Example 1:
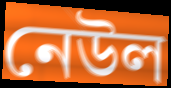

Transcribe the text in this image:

নেউল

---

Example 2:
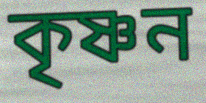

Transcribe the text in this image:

কৃষ্ণন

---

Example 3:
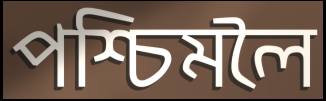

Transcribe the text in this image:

পশ্চিমলৈ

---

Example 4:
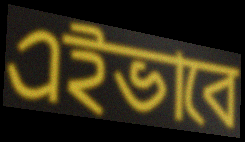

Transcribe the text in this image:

এইভাবে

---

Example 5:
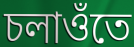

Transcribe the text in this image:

চলাওঁতে